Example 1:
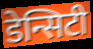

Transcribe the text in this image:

डेन्सिटी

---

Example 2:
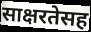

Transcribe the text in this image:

साक्षरतेसह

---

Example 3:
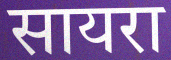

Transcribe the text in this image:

सायरा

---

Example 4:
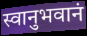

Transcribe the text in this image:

स्वानुभवानं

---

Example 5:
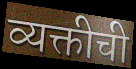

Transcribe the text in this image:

व्यक्तीची